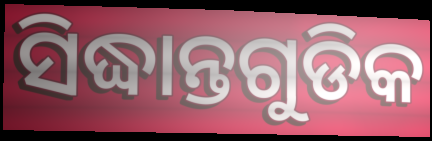
ସିଦ୍ଧାନ୍ତଗୁଡିକ